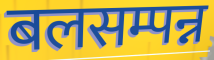
बलसम्पन्न